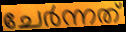
ചേർന്നത്